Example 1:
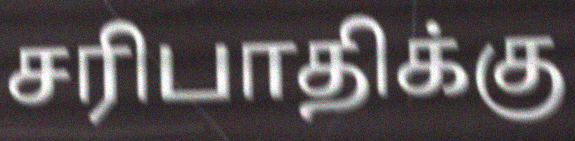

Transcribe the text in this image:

சரிபாதிக்கு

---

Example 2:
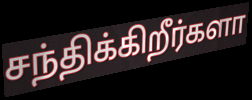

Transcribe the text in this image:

சந்திக்கிறீர்களா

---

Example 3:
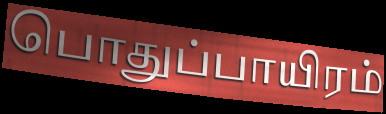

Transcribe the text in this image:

பொதுப்பாயிரம்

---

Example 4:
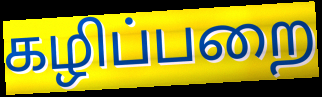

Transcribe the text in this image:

கழிப்பறை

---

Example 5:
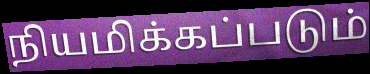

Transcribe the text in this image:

நியமிக்கப்படும்